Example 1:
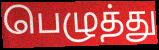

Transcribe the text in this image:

பெழுத்து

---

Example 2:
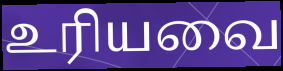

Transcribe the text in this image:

உரியவை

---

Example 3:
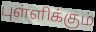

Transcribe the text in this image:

புள்ளிக்கும்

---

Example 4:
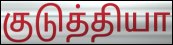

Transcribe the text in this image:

குடுத்தியா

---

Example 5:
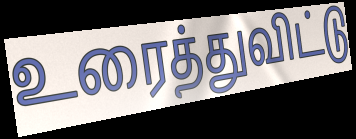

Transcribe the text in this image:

உரைத்துவிட்டு